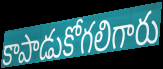
కాపాడుకోగలిగారు